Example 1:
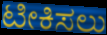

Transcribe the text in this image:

ಟೀಕಿಸಲು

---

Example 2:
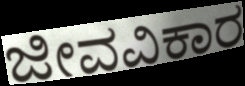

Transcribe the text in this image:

ಜೀವವಿಕಾರ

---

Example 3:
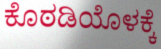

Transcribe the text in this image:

ಕೊಠಡಿಯೊಳಕ್ಕೆ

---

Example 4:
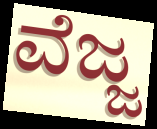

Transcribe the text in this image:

ವೆಜ್ಜ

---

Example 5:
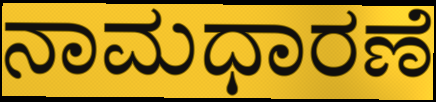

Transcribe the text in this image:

ನಾಮಧಾರಣೆ